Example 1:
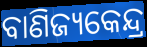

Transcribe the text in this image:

ବାଣିଜ୍ୟକେନ୍ଦ୍ର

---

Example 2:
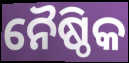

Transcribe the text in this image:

ନୈଷ୍ଠିକ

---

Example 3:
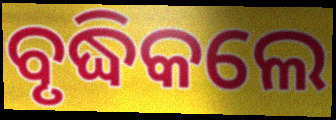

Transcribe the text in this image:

ବୃଦ୍ଧିକଲେ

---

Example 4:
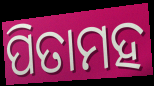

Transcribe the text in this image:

ପିତାମହ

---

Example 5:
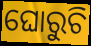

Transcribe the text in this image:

ଘୋରୁଚି